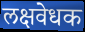
लक्षवेधक